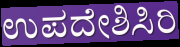
ಉಪದೇಶಿಸಿರಿ